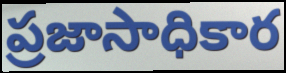
ప్రజాసాధికార